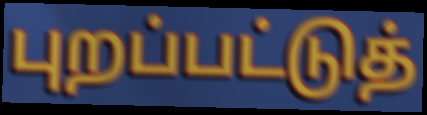
புறப்பட்டுத்